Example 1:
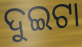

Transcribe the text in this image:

ଦୁଇଟା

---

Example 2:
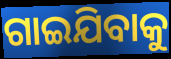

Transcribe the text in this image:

ଗାଇଯିବାକୁ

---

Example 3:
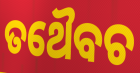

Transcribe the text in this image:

ତଥୈବଚ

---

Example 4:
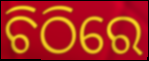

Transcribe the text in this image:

ଚିଠିରେ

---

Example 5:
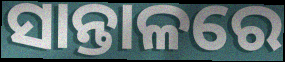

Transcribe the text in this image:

ସାନ୍ତାଳରେ